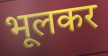
भूलकर